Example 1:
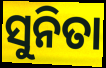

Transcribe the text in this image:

ସୁନିତା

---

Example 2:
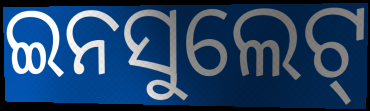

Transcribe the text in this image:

ଇନସୁଲେଟ୍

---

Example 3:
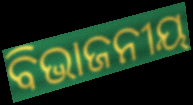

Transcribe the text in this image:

ବିଭାଜନୀୟ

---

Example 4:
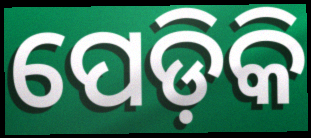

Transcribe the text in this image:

ପେଡ଼ିକି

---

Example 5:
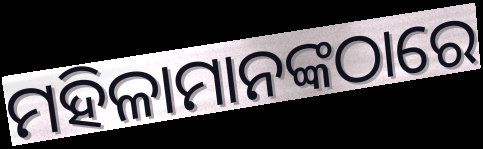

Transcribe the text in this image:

ମହିଳାମାନଙ୍କଠାରେ